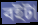
বইটা